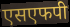
एसएफपी